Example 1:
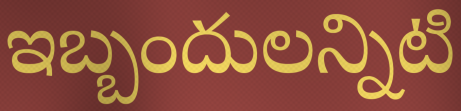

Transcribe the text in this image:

ఇబ్బందులన్నిటి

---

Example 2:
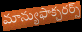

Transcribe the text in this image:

మాన్యుఫాక్చరర్స్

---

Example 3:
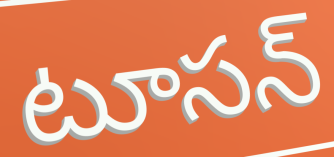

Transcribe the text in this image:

టూసన్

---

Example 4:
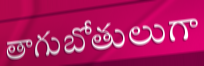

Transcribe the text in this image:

తాగుబోతులుగా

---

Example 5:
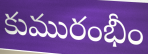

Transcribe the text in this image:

కుమురంభీం